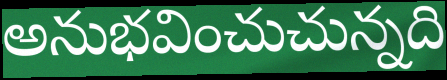
అనుభవించుచున్నది